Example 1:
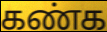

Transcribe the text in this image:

கண்க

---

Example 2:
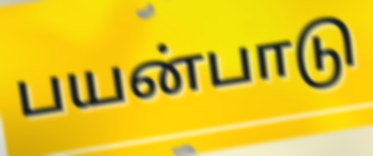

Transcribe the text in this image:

பயன்பாடு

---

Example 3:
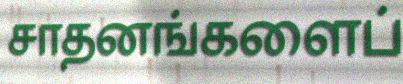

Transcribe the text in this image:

சாதனங்களைப்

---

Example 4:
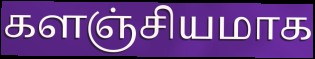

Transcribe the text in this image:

களஞ்சியமாக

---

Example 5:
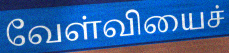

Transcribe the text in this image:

வேள்வியைச்